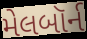
મેલબૉર્ન